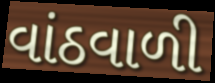
વાંઠવાળી